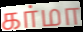
கர்மா